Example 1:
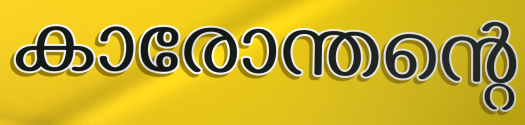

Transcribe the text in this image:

കാരോന്തന്റെ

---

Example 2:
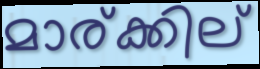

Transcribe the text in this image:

മാര്ക്കില്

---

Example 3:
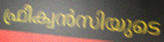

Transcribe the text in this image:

ഫ്രീക്വൻസിയുടെ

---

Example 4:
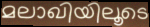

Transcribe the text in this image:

മലാഖിയിലൂടെ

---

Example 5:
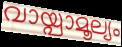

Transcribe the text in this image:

വായ്പാമൂല്യം